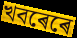
খবৰেৰে